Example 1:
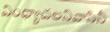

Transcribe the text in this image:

వింధ్యాచలనివాసినీ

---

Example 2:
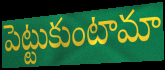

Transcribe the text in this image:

పెట్టుకుంటామా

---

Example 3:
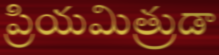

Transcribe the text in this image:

ప్రియమిత్రుడా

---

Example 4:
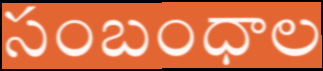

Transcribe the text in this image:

సంబంధాల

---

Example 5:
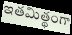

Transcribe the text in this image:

ఇతమిత్థంగా